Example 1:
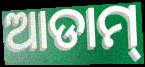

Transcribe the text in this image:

ଆଡାମ୍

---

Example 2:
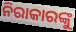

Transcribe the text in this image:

ନିରାକାରଙ୍କୁ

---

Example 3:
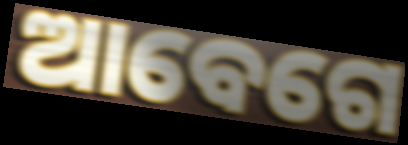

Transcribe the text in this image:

ଆବେଗେ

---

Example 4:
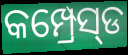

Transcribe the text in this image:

କମ୍ପ୍ରେସ୍‌ଡ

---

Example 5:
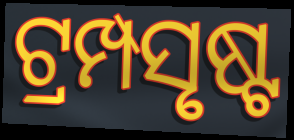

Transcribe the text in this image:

ଟ୍ରମ୍ପସୃଷ୍ଟ